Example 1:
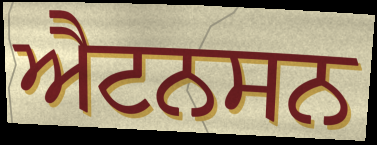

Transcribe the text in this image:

ਐਟਨਸਨ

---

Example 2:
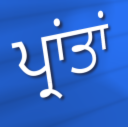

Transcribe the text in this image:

ਪ੍ਰਾਂਤਾਂ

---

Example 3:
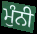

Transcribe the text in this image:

ਮੁੰਨੀ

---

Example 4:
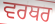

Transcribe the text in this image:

ਵਰਥਰ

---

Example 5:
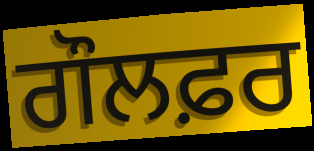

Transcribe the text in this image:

ਗੌਲਫ਼ਰ